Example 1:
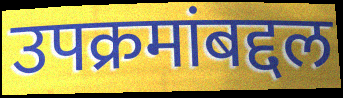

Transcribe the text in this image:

उपक्रमांबद्दल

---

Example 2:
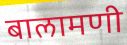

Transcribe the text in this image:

बालामणी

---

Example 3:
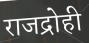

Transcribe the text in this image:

राजद्रोही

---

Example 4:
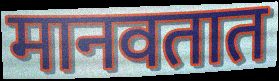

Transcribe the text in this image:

मानवतात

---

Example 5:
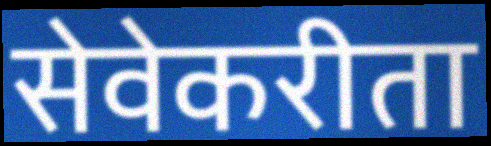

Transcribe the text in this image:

सेवेकरीता